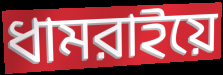
ধামরাইয়ে